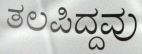
ತಲಪಿದ್ದವು